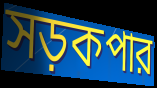
সড়কপার